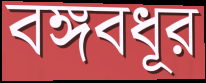
বঙ্গবধূর